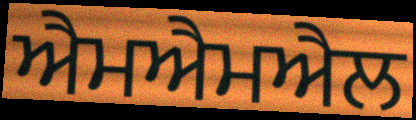
ਐਮਐਮਐਲ